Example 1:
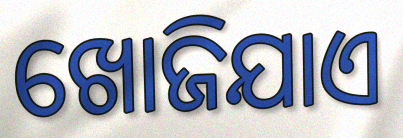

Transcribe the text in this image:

ଖୋଜିଯାଏ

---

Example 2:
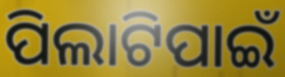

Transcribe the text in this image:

ପିଲାଟିପାଇଁ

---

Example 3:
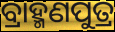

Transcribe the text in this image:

ବ୍ରାହ୍ମଣପୁତ୍ର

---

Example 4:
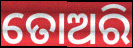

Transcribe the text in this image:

ତୋଅରି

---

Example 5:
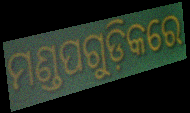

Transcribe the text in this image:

ମଣ୍ଡପଗୁଡ଼ିକରେ